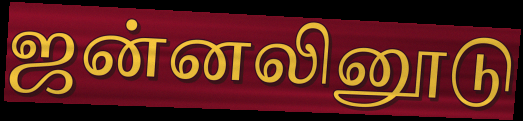
ஜன்னலினூடு